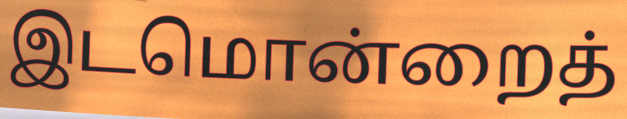
இடமொன்றைத்